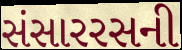
સંસારરસની